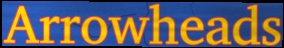
Arrowheads